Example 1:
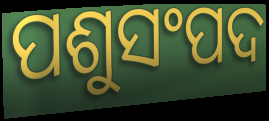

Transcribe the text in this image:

ପଶୁସଂପଦ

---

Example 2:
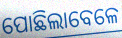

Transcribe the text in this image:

ପୋଛିଲାବେଳେ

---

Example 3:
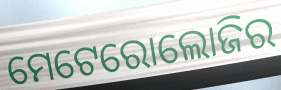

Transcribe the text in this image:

ମେଟେରୋଲୋଜିର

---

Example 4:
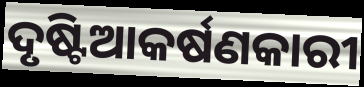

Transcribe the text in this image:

ଦୃଷ୍ଟିଆକର୍ଷଣକାରୀ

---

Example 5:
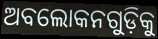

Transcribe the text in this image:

ଅବଲୋକନଗୁଡ଼ିକୁ